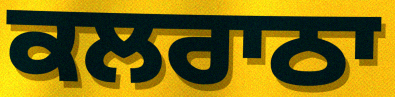
ਕਲਰਾਠਾ